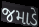
જમાડે